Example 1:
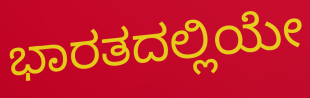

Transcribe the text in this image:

ಭಾರತದಲ್ಲಿಯೇ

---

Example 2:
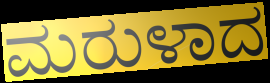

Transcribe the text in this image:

ಮರುಳಾದ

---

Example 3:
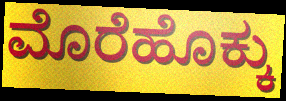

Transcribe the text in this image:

ಮೊರೆಹೊಕ್ಕು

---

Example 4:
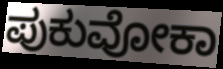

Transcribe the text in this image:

ಪುಕುವೋಕಾ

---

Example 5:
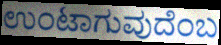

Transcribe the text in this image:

ಉಂಟಾಗುವುದೆಂಬ